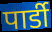
पार्डी